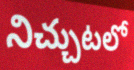
నిచ్చుటలో